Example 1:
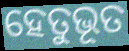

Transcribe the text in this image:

ହେତୁଭୂତ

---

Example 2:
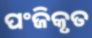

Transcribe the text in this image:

ପଂଜିକୃତ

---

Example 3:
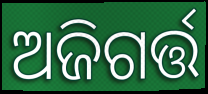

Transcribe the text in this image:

ଅଜିଗର୍ତ୍ତ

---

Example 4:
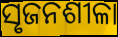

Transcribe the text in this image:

ସୃଜନଶୀଳା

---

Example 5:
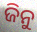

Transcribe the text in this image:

ଜିନୁ